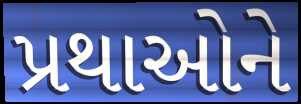
પ્રથાઓને